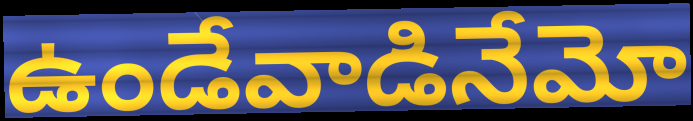
ఉండేవాడినేమో